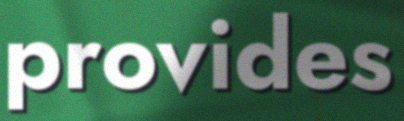
provides